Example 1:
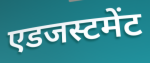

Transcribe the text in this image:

एडजस्टमेंट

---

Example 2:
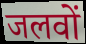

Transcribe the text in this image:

जलवों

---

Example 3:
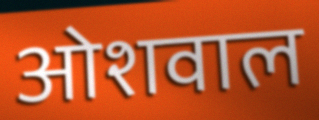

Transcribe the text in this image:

ओशवाल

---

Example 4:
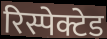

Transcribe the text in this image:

रिस्पेक्टेड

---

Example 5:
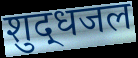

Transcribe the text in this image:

शुद्धजल